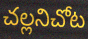
చల్లనిచోట